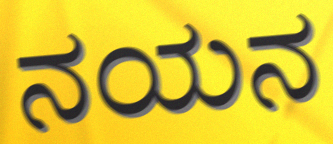
ನಯನ